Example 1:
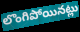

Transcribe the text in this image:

లొంగిపోయినట్లు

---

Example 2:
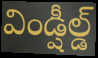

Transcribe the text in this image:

విండ్షీల్డ్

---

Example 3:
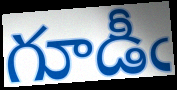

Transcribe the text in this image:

గూడీఁ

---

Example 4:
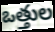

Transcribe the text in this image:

ఒత్తుల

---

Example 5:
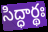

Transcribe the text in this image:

సిద్ధార్థః